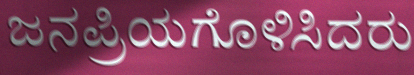
ಜನಪ್ರಿಯಗೊಳಿಸಿದರು